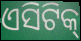
ଏସିଟିକ୍